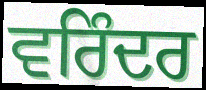
ਵਰਿੰਦਰ